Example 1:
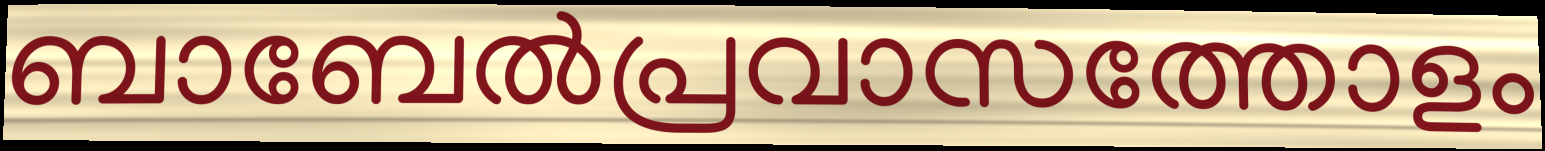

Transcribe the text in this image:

ബാബേൽപ്രവാസത്തോളം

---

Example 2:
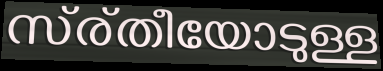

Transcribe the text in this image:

സ്ര്തീയോടുള്ള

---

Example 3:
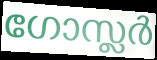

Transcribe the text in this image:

ഗോസ്ലർ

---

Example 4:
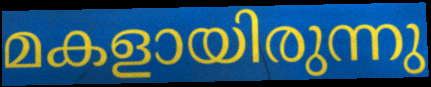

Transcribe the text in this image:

മകളായിരുന്നു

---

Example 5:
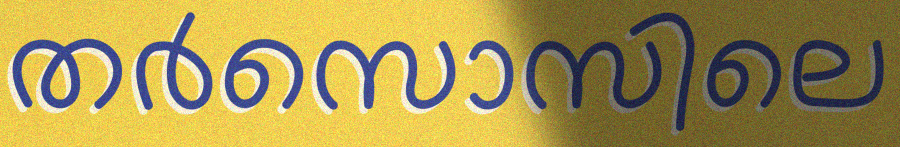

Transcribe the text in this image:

തർസൊസിലെ